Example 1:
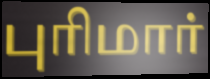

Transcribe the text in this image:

புரிமார்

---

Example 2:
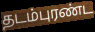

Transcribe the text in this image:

தடம்புரண்ட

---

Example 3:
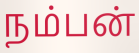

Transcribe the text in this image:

நம்பன்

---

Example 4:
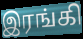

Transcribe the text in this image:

இரங்கி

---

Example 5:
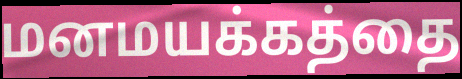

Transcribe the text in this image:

மனமயக்கத்தை